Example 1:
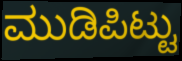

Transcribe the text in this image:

ಮುಡಿಪಿಟ್ಟು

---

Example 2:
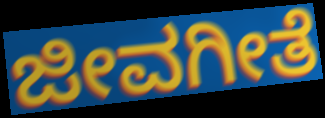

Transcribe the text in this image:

ಜೀವಗೀತೆ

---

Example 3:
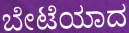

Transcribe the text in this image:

ಬೇಟೆಯಾದ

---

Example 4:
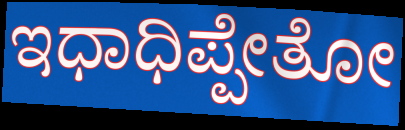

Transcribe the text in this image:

ಇಧಾಧಿಪ್ಪೇತೋ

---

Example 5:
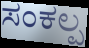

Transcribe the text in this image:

ಸಂಕಲ್ಪ